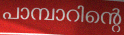
പാമ്പാറിന്റെ